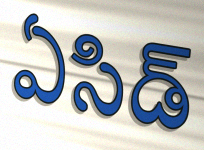
ఏసిడ్